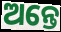
ଅନ୍ତେ